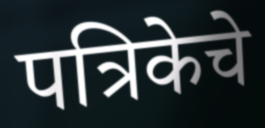
पत्रिकेचे